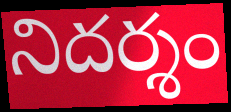
నిదర్శం